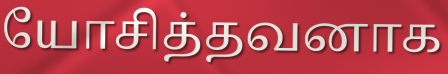
யோசித்தவனாக